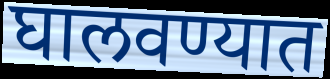
घालवण्यात